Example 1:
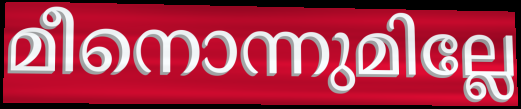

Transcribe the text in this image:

മീനൊന്നുമില്ലേ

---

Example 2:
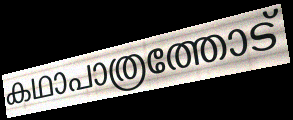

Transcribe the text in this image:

കഥാപാത്രത്തോട്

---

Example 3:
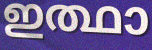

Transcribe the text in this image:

ഇത്ഥാ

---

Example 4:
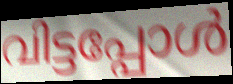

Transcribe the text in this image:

വിട്ടപ്പോൾ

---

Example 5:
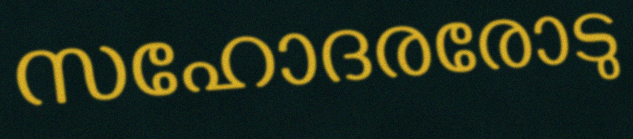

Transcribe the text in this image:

സഹോദരരോടു